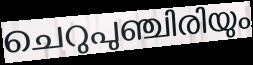
ചെറുപുഞ്ചിരിയും